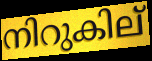
നിറുകില്